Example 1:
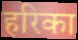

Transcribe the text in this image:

हरिका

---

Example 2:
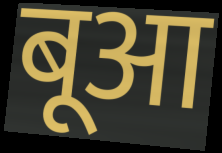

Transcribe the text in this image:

बूआ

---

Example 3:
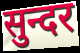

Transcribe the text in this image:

सुन्दर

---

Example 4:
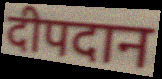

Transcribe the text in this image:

दीपदान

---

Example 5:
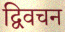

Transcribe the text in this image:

द्विवचन